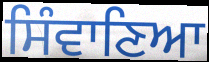
ਸਿੰਵਾਣਿਆ